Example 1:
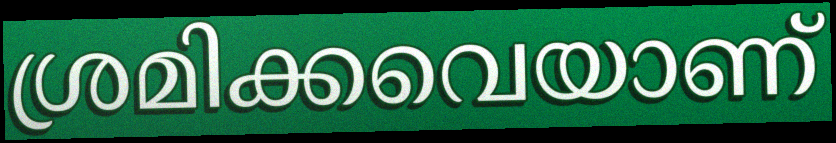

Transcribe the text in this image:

ശ്രമിക്കവെയാണ്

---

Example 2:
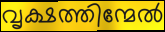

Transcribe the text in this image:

വൃക്ഷത്തിന്മേൽ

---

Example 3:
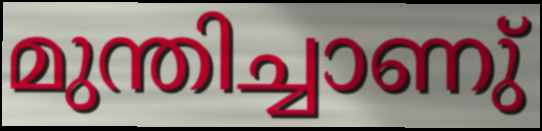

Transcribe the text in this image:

മുന്തിച്ചാണു്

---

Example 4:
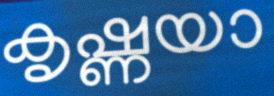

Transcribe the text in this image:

കൃഷ്ണയാ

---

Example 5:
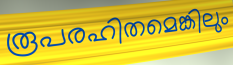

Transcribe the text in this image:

രൂപരഹിതമെങ്കിലും